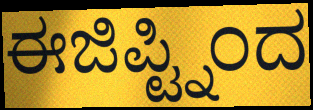
ಈಜಿಪ್ಟ್ನಿಂದ